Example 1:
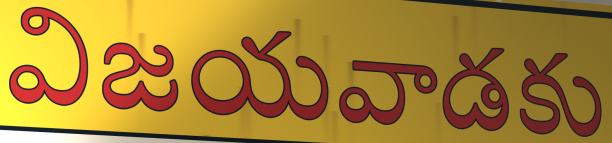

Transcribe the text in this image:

విజయవాడకు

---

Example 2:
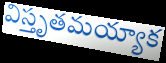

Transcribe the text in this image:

విస్తృతమయ్యాక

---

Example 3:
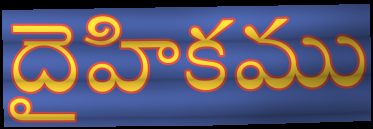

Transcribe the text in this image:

దైహికము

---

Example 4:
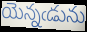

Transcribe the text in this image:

యెన్నఁడును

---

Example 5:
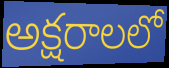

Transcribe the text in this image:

అక్షరాలలో